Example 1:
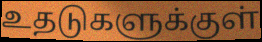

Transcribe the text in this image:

உதடுகளுக்குள்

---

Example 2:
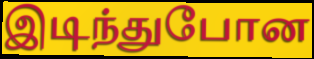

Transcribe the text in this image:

இடிந்துபோன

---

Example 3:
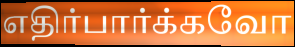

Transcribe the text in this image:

எதிர்பார்க்கவோ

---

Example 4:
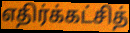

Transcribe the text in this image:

எதிர்க்கட்சித்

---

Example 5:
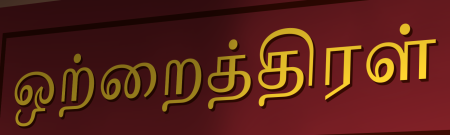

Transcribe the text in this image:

ஒற்றைத்திரள்